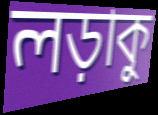
লড়াকু